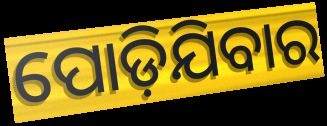
ପୋଡ଼ିଯିବାର